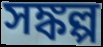
সঙ্কল্প